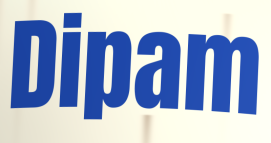
Dipam